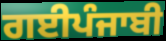
ਗਈਪੰਜਾਬੀ